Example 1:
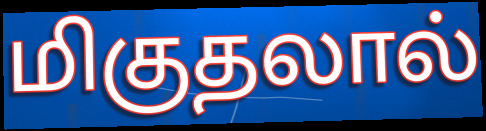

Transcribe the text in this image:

மிகுதலால்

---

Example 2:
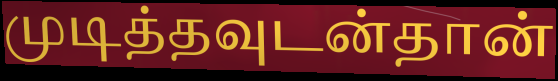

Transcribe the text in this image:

முடித்தவுடன்தான்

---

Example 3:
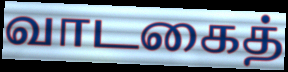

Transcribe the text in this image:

வாடகைத்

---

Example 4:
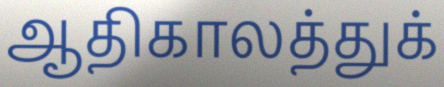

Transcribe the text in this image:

ஆதிகாலத்துக்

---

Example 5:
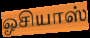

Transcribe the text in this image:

ஓசியாஸ்